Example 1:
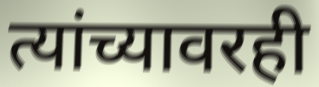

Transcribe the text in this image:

त्यांच्यावरही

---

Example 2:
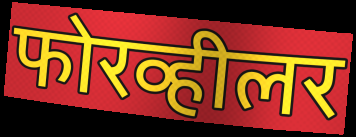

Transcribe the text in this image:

फोरव्हीलर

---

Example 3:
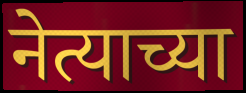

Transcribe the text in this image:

नेत्याच्या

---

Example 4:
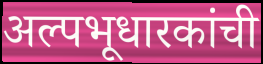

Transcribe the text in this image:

अल्पभूधारकांची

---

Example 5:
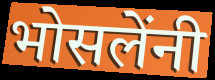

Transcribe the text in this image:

भोसलेंनी